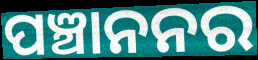
ପଞ୍ଚାନନର